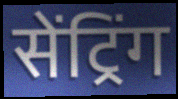
सेंट्रिंग